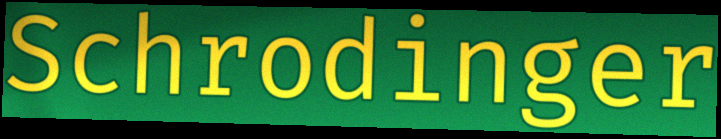
Schrodinger